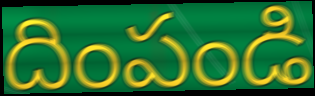
దింపండి